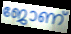
ജോണ്